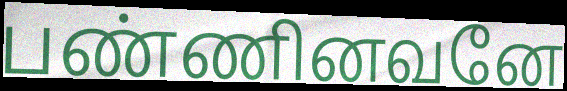
பண்ணினவனே